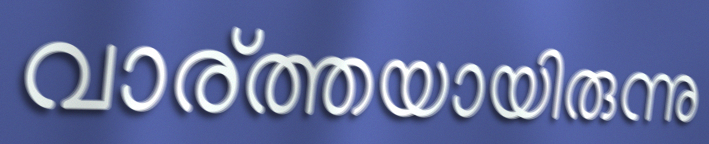
വാര്ത്തയായിരുന്നു